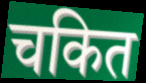
चकित